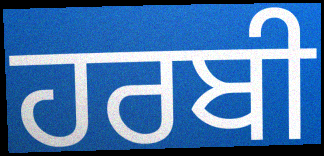
ਹਰਬੀ